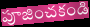
పూజించకండి